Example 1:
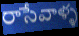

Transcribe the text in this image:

రాసేవాళ్ళ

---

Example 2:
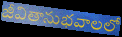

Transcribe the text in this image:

జీవితానుభవాలలో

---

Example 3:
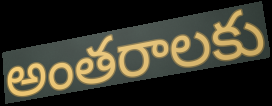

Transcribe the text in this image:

అంతరాలకు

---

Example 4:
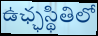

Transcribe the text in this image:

ఉఛ్ఛస్థితిలో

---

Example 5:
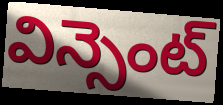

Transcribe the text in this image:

విన్సెంట్